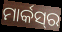
ମାର୍କସ୍‍ର